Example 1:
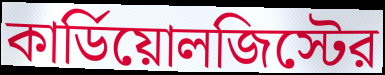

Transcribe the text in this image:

কার্ডিয়োলজিস্টের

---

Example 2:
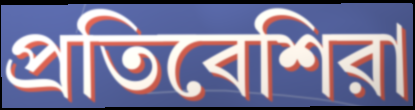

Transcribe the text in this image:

প্রতিবেশিরা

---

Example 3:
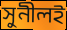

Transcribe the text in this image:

সুনীলই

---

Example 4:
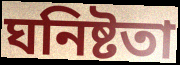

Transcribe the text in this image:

ঘনিষ্টতা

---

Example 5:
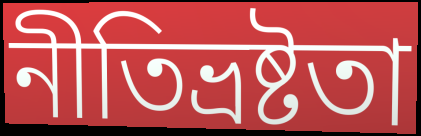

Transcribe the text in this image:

নীতিভ্রষ্টতা